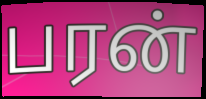
பரன்